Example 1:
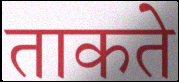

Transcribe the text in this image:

ताकते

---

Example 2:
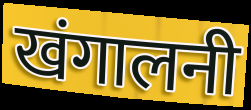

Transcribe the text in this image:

खंगालनी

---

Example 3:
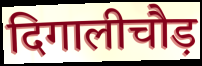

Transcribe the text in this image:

दिगालीचौड़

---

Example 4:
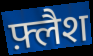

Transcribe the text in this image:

फ़्लैश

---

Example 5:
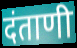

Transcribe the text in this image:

दंताणी